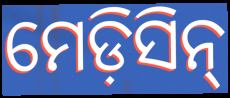
ମେଡ଼ିସିନ୍